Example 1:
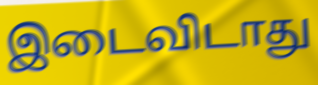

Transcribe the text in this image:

இடைவிடாது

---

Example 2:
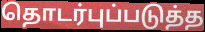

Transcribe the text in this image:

தொடர்புப்படுத்த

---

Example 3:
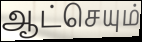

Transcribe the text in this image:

ஆட்செயும்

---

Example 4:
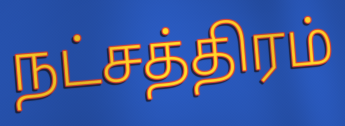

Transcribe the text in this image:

நட்சத்திரம்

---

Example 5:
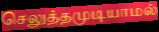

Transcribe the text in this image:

செலுத்தமுடியாமல்